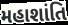
મહાશાંતિ